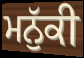
ਮਨੁੱਕੀ